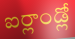
ఐర్లాండ్లో